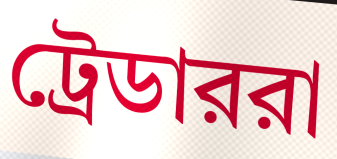
ট্রেডাররা